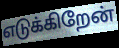
எடுக்கிறேன்